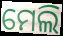
ମେଲି